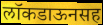
लॉकडाऊनसह